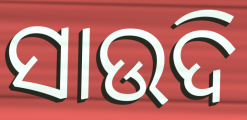
ସାଉଦି